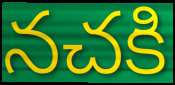
నచకి